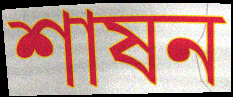
শাষন